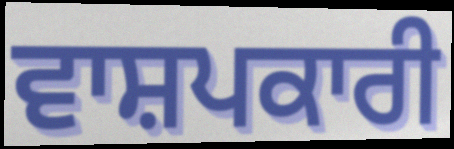
ਵਾਸ਼ਪਕਾਰੀ